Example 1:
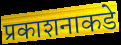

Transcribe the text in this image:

प्रकाशनाकडे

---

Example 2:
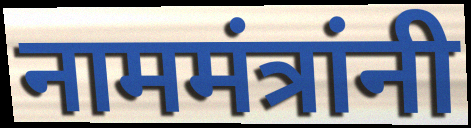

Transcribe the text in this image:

नाममंत्रांनी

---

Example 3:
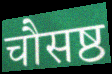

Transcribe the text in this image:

चौसष्ठ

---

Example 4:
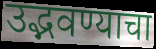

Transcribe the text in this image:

उद्भवण्याचा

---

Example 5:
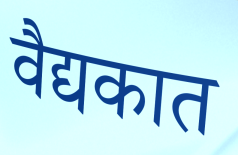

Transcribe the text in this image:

वैद्यकात